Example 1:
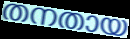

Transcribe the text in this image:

തനതായ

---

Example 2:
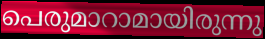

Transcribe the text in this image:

പെരുമാറാമായിരുന്നു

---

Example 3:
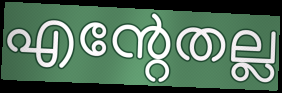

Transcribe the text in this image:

എന്റേതല്ല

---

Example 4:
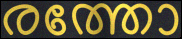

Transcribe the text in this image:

രത്തോ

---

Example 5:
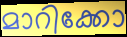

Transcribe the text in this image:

മാറിക്കോ